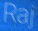
Raj